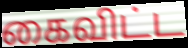
கைவிட்ட